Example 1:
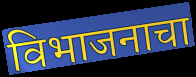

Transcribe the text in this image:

विभाजनाचा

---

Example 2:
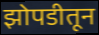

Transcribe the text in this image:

झोपडीतून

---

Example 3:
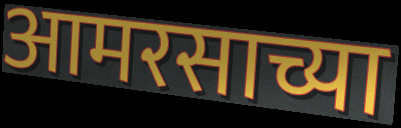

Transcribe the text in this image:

आमरसाच्या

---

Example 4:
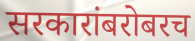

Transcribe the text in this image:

सरकारांबरोबरच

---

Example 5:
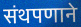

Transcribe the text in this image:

संथपणाने